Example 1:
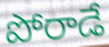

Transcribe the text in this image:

పోరాడే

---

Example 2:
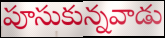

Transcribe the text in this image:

పూసుకున్నవాడు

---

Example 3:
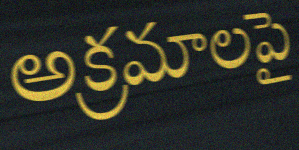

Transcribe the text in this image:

అక్రమాలపై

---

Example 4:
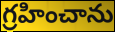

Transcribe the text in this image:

గ్రహించాను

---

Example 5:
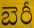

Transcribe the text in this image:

బెరీ